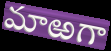
మాఱగా